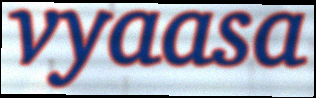
vyaasa